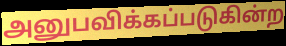
அனுபவிக்கப்படுகின்ற